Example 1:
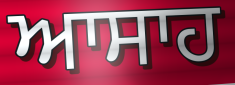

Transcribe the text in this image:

ਆਸਾਹ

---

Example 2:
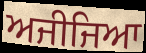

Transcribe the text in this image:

ਅਜੀਜਿਆ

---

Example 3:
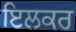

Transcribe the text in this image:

ਇਲਕਰ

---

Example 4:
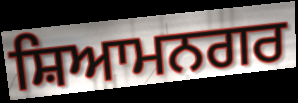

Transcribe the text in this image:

ਸ਼ਿਆਮਨਗਰ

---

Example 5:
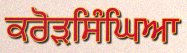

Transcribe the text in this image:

ਕਰੋੜਸਿੰਘਿਆ